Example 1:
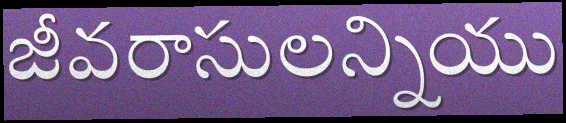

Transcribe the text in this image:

జీవరాసులన్నియు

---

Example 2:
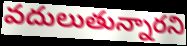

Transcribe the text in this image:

వదులుతున్నారని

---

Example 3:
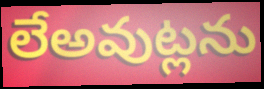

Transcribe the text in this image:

లేఅవుట్లను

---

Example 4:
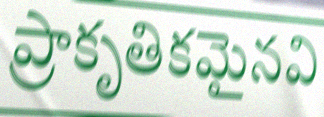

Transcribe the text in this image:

ప్రాకృతికమైనవి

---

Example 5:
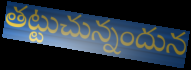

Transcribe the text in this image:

తట్టుచున్నందున